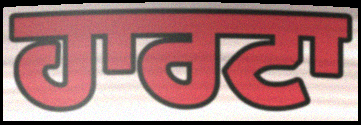
ਹਾਰਟਾ